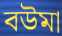
বউমা